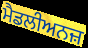
ਮੈਡਲੀਅਨਜ਼